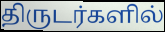
திருடர்களில்